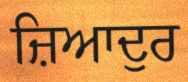
ਜ਼ਿਆਦੁਰ